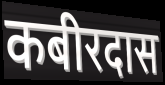
कबीरदास